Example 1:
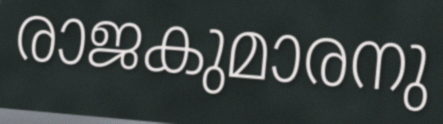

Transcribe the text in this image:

രാജകുമാരനു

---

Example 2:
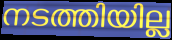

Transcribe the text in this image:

നടത്തിയില്ല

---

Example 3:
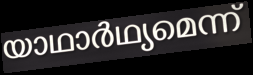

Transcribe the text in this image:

യാഥാർഥ്യമെന്ന്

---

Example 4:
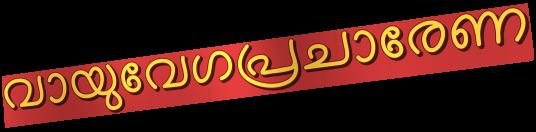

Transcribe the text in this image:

വായുവേഗപ്രചാരേണ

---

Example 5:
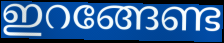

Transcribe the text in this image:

ഇറങ്ങേണ്ട